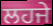
ਲਹਜੇ